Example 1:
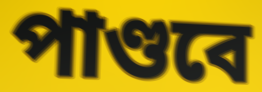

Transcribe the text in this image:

পাণ্ডবে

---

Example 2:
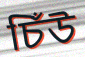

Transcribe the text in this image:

চিঁউ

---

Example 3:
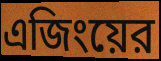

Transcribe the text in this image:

এজিংয়ের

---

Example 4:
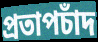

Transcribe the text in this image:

প্রতাপচাঁদ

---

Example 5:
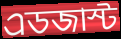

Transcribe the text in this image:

এডজাস্ট